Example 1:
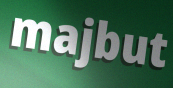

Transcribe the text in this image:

majbut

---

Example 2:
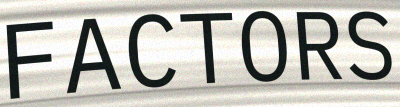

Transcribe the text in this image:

FACTORS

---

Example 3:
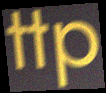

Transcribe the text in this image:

ttp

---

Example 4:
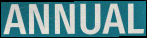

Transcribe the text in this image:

ANNUAL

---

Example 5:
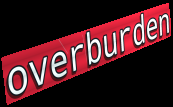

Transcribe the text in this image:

overburden